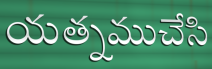
యత్నముచేసి